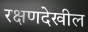
रक्षणदेखील